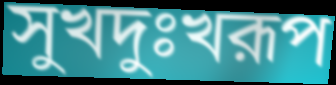
সুখদুঃখরূপ